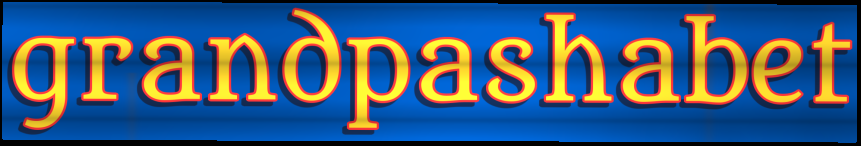
grandpashabet